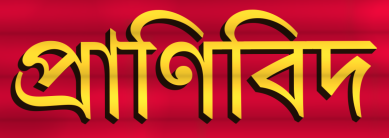
প্রাণিবিদ